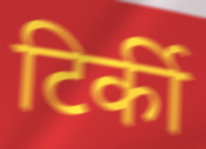
टिर्की